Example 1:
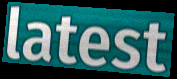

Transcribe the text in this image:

latest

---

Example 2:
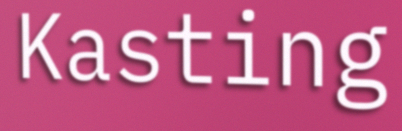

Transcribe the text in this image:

Kasting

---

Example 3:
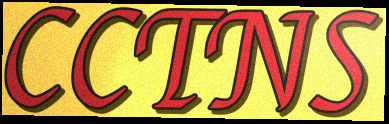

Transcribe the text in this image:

CCTNS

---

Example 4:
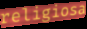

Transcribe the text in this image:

religiosa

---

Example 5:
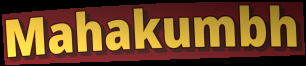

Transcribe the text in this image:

Mahakumbh